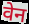
वेन